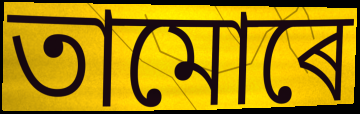
তামোৰে